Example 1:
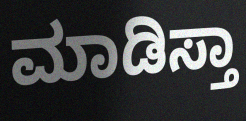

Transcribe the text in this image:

ಮಾಡಿಸ್ತಾ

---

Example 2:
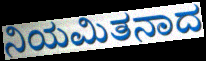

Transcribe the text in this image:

ನಿಯಮಿತನಾದ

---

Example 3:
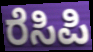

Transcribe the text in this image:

ರೆಸಿಪಿ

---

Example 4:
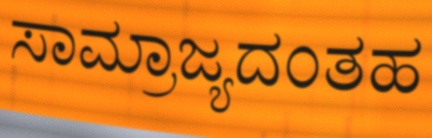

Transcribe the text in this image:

ಸಾಮ್ರಾಜ್ಯದಂತಹ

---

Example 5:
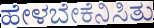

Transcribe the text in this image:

ಹೇಳಬೇಕೆನಿಸಿತು